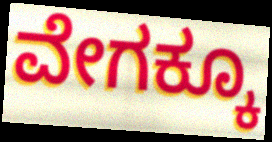
ವೇಗಕ್ಕೂ